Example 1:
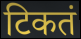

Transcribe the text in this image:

टिकतं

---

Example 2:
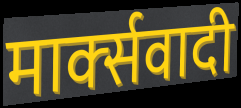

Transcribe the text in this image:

मार्क्‍सवादी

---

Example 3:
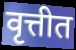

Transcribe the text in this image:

वृत्तीत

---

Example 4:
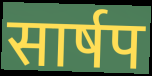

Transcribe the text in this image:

सार्षप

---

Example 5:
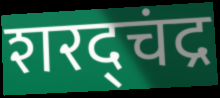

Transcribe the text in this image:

शरद्चंद्र